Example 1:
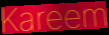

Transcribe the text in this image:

Kareem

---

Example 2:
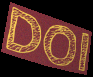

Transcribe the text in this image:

DOI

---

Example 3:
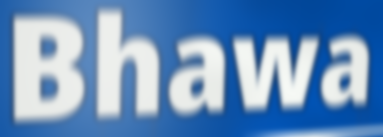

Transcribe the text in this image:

Bhawa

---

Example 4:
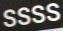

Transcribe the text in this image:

SSSS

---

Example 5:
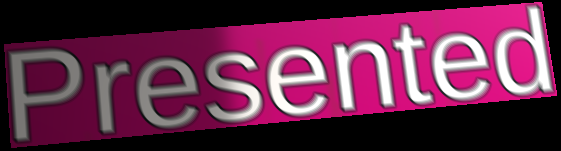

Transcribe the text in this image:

Presented